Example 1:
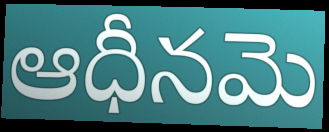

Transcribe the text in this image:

ఆధీనమె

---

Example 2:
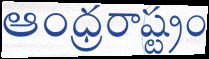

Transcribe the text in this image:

ఆంధ్రరాష్ట్రం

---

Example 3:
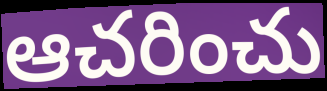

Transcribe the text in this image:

ఆచరించు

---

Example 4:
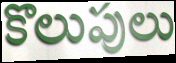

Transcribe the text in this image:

కొలుపులు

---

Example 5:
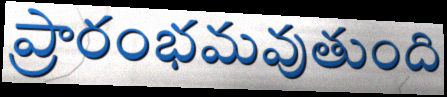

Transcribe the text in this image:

ప్రారంభమవుతుంది